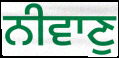
ਨੀਵਾਣੁ